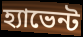
হ্যাভেন্ট